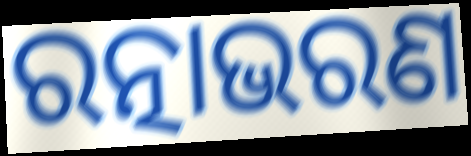
ରତ୍ନାଭରଣ